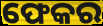
ଫେକର